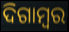
ଦିଗାମ୍ଵର